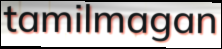
tamilmagan